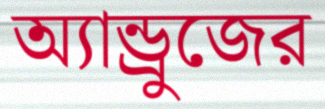
অ্যান্ড্রুজের